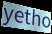
yetho